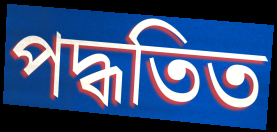
পদ্ধতিত